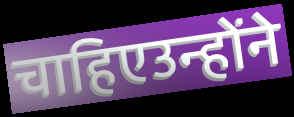
चाहिएउन्होंने